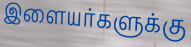
இளையர்களுக்கு